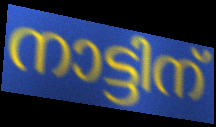
നാട്ടിന്